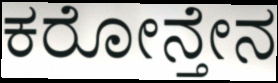
ಕರೋನ್ತೇನ